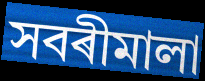
সবৰীমালা